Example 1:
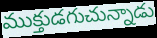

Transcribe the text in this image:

ముక్తుడగుచున్నాడు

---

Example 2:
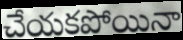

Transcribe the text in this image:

చేయకపోయినా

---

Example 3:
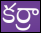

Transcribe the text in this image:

కర్రా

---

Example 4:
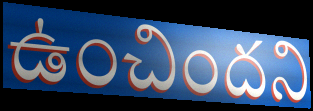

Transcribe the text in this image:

ఉంచిందని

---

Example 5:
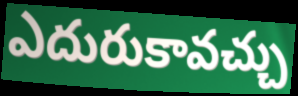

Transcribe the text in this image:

ఎదురుకావచ్చు